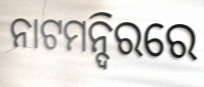
ନାଟମନ୍ଦିରରେ